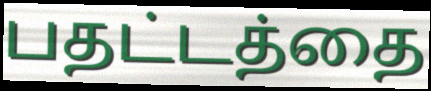
பதட்டத்தை